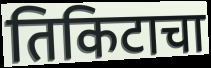
तिकिटाचा